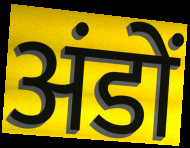
अंडों